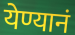
येण्यानं